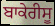
ਬਾਕੇਰੀਸੂ